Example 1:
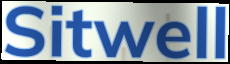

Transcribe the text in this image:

Sitwell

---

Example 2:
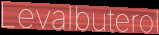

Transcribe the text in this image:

Levalbuterol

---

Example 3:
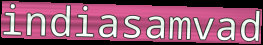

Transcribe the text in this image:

indiasamvad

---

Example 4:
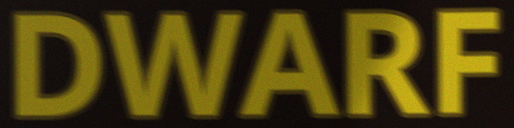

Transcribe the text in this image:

DWARF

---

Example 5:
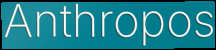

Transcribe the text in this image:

Anthropos